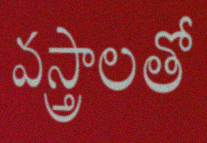
వస్త్రాలతో